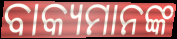
ବାକ୍ୟମାନଙ୍କ